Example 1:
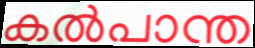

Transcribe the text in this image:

കൽപാന്ത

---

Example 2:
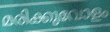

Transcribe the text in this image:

മരിക്കുവോളം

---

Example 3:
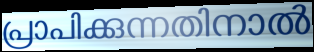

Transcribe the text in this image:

പ്രാപിക്കുന്നതിനാൽ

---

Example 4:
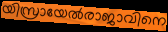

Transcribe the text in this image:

യിസ്രായേൽരാജാവിനെ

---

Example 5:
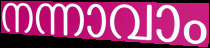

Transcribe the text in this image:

നന്നാവാം